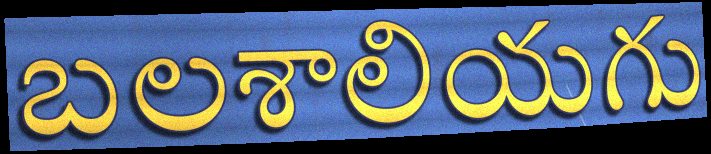
బలశాలియగు